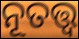
ନୂତତ୍ତ୍ବ